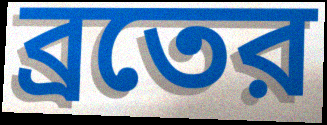
ব্রতের